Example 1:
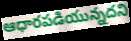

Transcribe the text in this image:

ఆధారపడియున్నదని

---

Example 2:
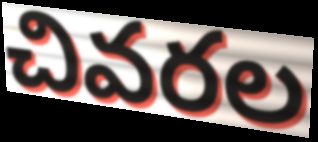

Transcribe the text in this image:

చివరల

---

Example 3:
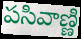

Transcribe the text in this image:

పసివాణ్ణి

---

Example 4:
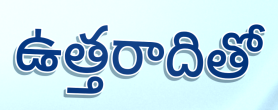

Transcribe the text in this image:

ఉత్తరాదితో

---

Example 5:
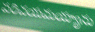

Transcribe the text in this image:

పరిచయమయ్యాను